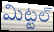
మిట్టల్